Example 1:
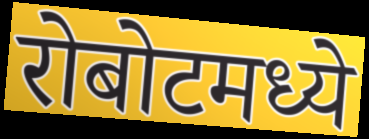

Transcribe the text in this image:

रोबोटमध्ये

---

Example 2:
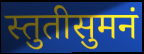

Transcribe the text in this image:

स्तुतीसुमनं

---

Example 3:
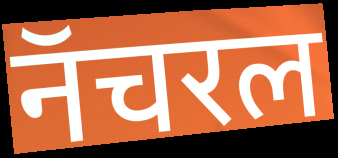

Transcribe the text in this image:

नॅचरल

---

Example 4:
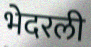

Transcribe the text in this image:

भेदरली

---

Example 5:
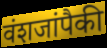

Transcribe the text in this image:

वंशजांपैकी